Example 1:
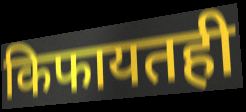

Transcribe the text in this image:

किफायतही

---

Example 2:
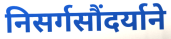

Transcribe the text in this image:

निसर्गसौंदर्याने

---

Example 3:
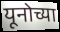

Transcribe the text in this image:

यूनोच्या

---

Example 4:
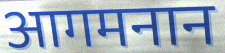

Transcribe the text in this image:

आगमनान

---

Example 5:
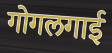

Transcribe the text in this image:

गोगलगाई